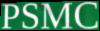
PSMC